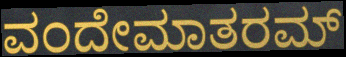
ವಂದೇಮಾತರಮ್